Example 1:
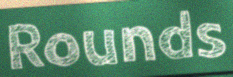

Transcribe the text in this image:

Rounds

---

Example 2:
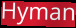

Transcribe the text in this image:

Hyman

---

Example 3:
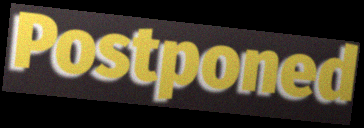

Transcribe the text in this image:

Postponed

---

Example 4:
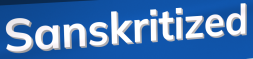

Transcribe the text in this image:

Sanskritized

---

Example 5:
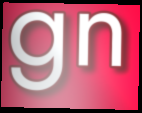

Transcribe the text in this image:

gn